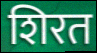
शिरत